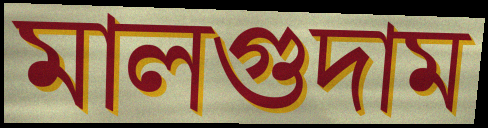
মালগুদাম